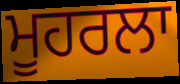
ਮੂਹਰਲਾ